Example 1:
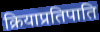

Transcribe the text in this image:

क्रियाप्रतिपाति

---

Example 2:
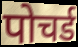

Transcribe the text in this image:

पोचर्ड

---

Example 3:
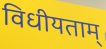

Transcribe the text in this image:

विधीयताम्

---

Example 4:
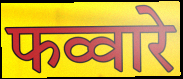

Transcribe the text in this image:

फव्‍वारे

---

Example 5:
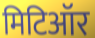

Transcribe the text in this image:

मिटिऑर